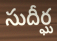
సుదీర్ఘ